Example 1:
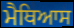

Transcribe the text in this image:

ਮੈਥਿਆਸ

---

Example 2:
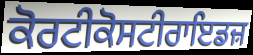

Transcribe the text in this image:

ਕੋਰਟੀਕੋਸਟੀਰਾਇਡਜ਼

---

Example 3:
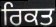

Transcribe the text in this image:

ਰਿਕਤ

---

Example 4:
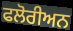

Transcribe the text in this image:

ਫਲੋਰੀਅਨ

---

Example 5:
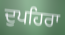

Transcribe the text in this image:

ਦੁਪਹਿਰਾ